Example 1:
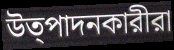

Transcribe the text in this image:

উত্পাদনকারীরা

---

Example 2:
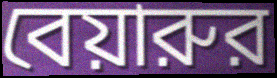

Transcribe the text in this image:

বেয়ারুর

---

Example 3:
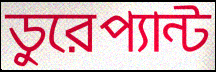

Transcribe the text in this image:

ডুরেপ্যান্ট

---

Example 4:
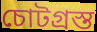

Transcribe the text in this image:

চোটগ্রস্ত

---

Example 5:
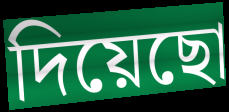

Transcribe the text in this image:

দিয়েছো